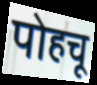
पोहचू